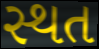
સ્થત